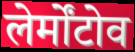
लेर्मोंटोव